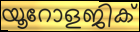
യൂറോളജിക്